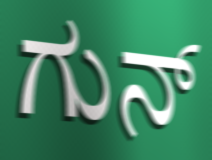
ಗುನ್